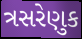
ત્રસરેણુક